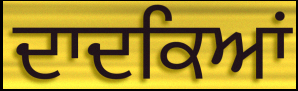
ਦਾਦਕਿਆਂ